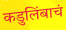
कडुलिंबाचं